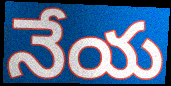
నేయ